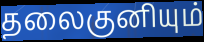
தலைகுனியும்